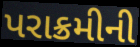
પરાક્રમીની